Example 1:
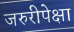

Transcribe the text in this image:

जरुरीपेक्षा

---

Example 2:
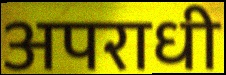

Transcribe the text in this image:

अपराधी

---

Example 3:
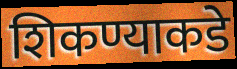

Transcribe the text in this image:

शिकण्याकडे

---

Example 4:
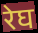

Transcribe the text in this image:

रेघ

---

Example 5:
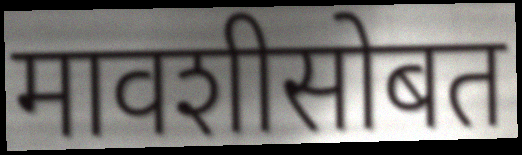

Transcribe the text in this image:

मावशीसोबत